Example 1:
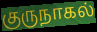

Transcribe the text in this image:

குருநாகல்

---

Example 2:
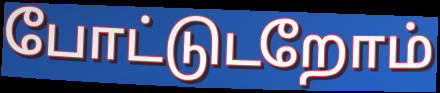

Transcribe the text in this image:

போட்டுடறோம்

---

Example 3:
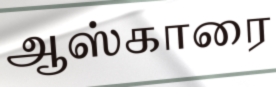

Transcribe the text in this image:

ஆஸ்காரை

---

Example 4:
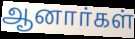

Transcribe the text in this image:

ஆனார்கள்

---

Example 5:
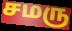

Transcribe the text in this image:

சமரு